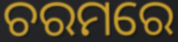
ଚରମରେ